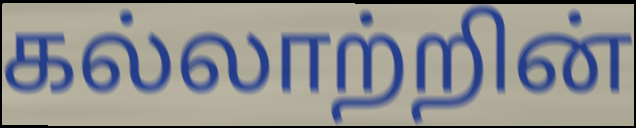
கல்லாற்றின்